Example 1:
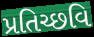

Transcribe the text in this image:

પ્રતિચ્છવિ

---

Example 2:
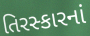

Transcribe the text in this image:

તિરસ્કારનાં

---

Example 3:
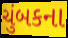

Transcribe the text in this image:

ચુંબકના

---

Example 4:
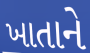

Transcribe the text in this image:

ખાતાને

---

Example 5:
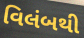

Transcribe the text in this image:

વિલંબથી